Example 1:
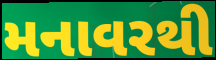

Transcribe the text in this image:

મનાવરથી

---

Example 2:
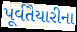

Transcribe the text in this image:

પૂર્વતૈયારીના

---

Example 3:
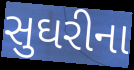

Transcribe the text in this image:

સુઘરીના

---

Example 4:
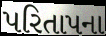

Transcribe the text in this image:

પરિતાપના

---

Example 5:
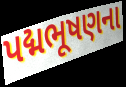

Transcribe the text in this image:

પદ્મભૂષણના